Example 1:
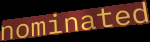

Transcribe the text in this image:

nominated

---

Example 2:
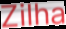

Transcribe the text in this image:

Zilha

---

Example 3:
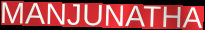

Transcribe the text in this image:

MANJUNATHA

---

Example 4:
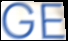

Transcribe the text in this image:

GE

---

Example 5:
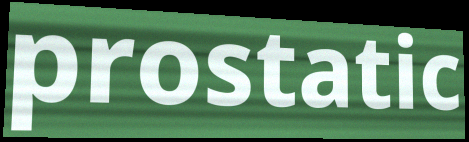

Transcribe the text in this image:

prostatic